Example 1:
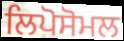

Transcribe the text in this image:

ਲਿਪੋਸੋਮਲ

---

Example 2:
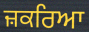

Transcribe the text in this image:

ਜ਼ਕਰਿਆ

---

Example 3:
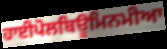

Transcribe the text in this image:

ਹਾਈਪੋਲਬਿਊਮਿਨਮੀਆ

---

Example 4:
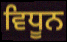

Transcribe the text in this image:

ਵਿਧੂਨ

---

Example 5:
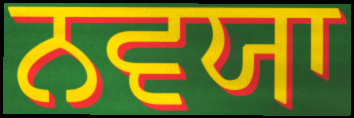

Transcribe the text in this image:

ਨਵਯਾ